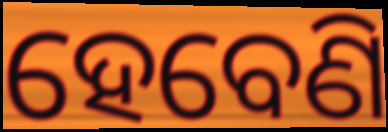
ହେବେଣି